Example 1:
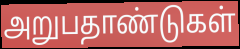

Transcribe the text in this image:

அறுபதாண்டுகள்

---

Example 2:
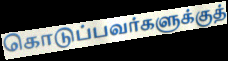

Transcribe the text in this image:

கொடுப்பவர்களுக்குத்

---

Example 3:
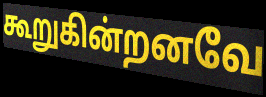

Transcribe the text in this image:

கூறுகின்றனவே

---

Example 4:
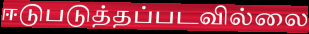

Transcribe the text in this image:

ஈடுபடுத்தப்படவில்லை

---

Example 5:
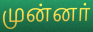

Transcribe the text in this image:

முன்னர்